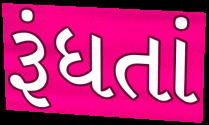
રૂંધતાં